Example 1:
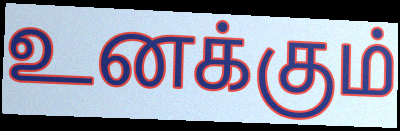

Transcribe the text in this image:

உனக்கும்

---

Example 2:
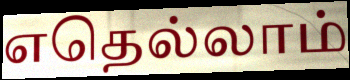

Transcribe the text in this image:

எதெல்லாம்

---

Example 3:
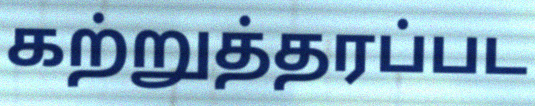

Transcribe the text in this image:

கற்றுத்தரப்பட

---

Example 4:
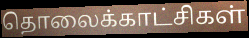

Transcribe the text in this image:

தொலைக்காட்சிகள்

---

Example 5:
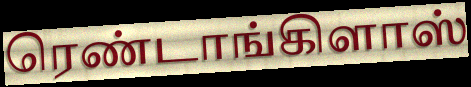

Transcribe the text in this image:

ரெண்டாங்கிளாஸ்